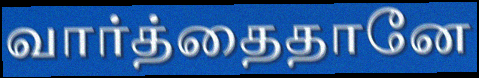
வார்த்தைதானே